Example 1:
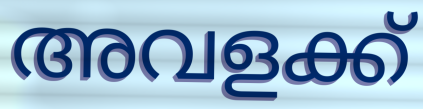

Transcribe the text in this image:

അവളക്ക്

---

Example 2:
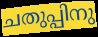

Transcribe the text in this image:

ചതുപ്പിനു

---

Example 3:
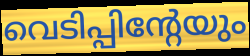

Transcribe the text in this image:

വെടിപ്പിന്റേയും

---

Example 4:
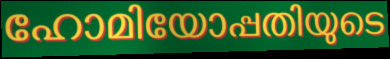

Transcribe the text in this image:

ഹോമിയോപ്പതിയുടെ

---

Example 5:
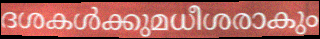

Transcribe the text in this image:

ദശകൾക്കുമധീശരാകും